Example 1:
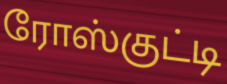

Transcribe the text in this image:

ரோஸ்குட்டி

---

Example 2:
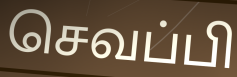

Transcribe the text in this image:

செவப்பி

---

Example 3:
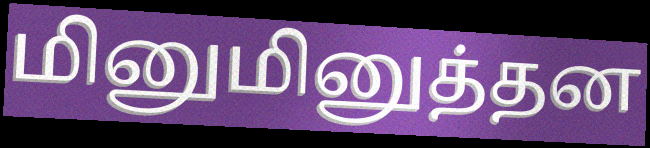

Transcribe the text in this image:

மினுமினுத்தன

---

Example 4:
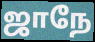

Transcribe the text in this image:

ஜாநே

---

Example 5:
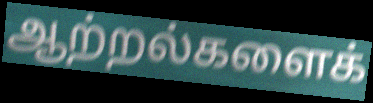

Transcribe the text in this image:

ஆற்றல்களைக்